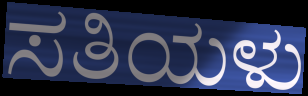
ಸತಿಯಳು